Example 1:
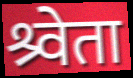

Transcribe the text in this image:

श्र्वेता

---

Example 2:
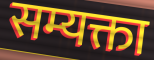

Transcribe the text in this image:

सम्यक्ता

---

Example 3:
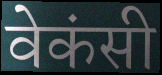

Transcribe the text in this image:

वेकंसी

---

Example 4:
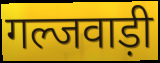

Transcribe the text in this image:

गल्जवाड़ी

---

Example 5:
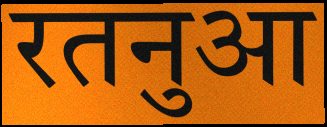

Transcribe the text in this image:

रतनुआ